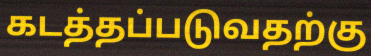
கடத்தப்படுவதற்கு